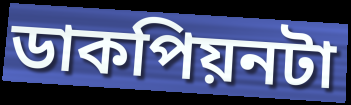
ডাকপিয়নটা